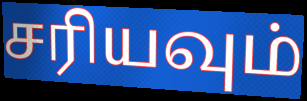
சரியவும்